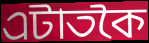
এটাতকৈ